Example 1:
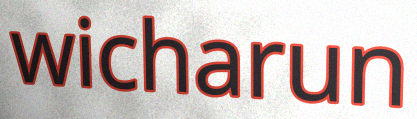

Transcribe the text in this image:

wicharun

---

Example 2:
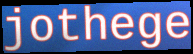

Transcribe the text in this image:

jothege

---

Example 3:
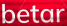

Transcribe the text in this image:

betar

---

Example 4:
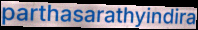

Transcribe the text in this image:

parthasarathyindira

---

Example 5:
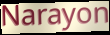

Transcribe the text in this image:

Narayon